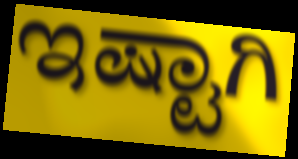
ಇಷ್ಟಾಗಿ